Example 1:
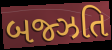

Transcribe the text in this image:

બજ્ઝતિ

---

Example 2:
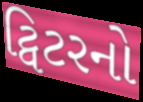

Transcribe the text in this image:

ટ્વિટરનો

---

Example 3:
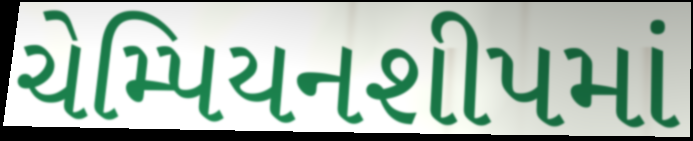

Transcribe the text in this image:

ચેમ્પિયનશીપમાં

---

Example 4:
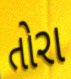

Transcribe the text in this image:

તોરા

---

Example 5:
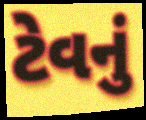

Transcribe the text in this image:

ટેવનું